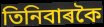
তিনিবাৰকৈ